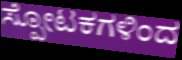
ಸ್ಪೋಟಕಗಳಿಂದ